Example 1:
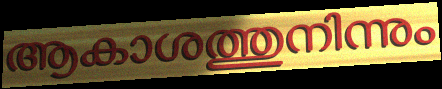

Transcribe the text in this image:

ആകാശത്തുനിന്നും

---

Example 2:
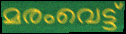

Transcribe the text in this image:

മരംവെട്ട്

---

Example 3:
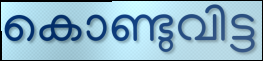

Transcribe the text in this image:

കൊണ്ടുവിട്ട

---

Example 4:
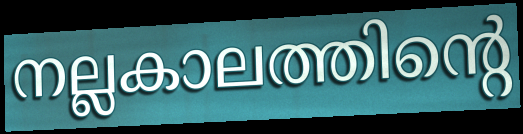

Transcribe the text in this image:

നല്ലകാലത്തിന്റെ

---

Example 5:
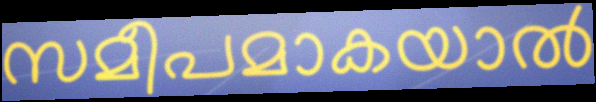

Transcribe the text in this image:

സമീപമാകയാൽ